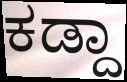
ಕಡ್ದಾ